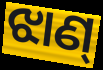
ଝାଣ୍